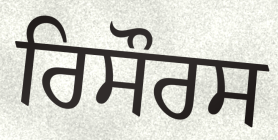
ਰਿਸੌਰਸ